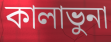
কালাভুনা